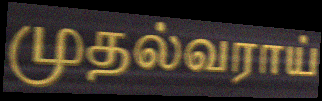
முதல்வராய்